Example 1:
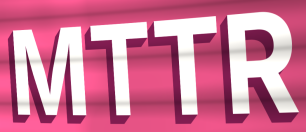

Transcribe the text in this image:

MTTR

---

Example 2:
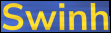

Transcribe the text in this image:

Swinh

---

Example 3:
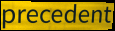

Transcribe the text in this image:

precedent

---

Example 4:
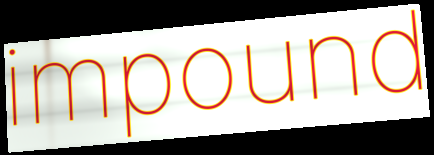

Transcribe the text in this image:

impound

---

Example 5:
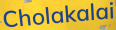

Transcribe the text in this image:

Cholakalai